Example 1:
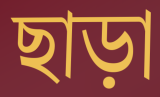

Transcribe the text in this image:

ছাড়া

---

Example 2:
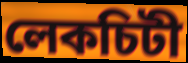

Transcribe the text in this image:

লেকচিটী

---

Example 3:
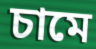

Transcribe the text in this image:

চামে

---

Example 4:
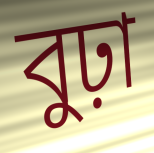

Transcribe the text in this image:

বুঢ়া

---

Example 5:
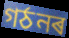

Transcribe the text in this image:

গঠনৰ